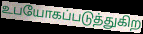
உபயோகப்படுத்துகிற